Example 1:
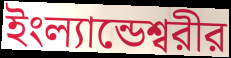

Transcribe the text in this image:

ইংল্যান্ডেশ্বরীর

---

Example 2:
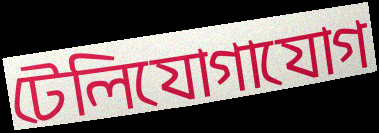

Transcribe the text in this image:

টেলিযোগাযোগ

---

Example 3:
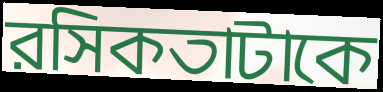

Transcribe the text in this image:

রসিকতাটাকে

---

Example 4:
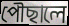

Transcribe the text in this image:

পৌছালে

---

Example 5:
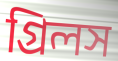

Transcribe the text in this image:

গ্রিলস